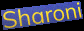
Sharoni